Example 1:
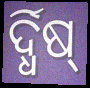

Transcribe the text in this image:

ର୍ଦ୍ଧିଷ୍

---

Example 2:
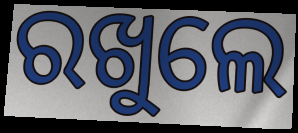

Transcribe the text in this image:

ରଖୁଲେ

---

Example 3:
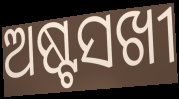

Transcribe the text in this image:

ଅଷ୍ଟସଖୀ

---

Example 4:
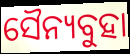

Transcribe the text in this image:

ସୈନ୍ୟବୁହା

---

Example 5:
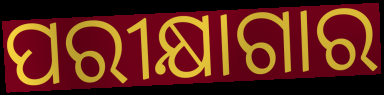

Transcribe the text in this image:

ପରୀକ୍ଷାଗାର